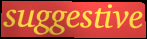
suggestive